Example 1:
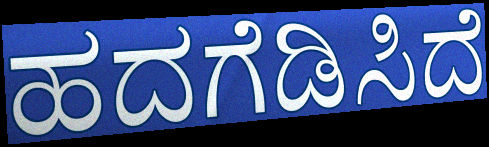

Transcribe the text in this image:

ಹದಗೆಡಿಸಿದೆ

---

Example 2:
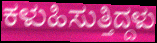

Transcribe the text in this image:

ಕಳುಹಿಸುತ್ತಿದ್ದಳು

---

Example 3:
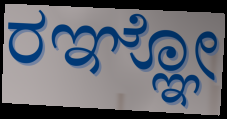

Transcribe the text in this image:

ರಞ್ಞೋ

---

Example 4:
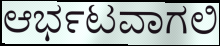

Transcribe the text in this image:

ಆರ್ಭಟವಾಗಲಿ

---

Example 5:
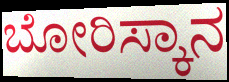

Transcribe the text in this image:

ಬೋರಿಸ್ಕಾನ